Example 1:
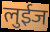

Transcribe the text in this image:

लुईज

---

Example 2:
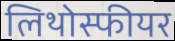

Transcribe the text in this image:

लिथोस्फीयर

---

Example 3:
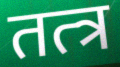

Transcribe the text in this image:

तत्त्र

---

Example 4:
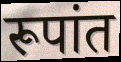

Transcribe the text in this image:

रूपांत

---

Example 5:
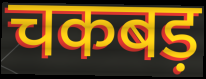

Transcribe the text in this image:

चकबड़